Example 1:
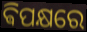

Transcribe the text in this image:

ଵିପକ୍ଷରେ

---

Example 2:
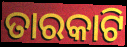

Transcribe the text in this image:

ତାରକାଟି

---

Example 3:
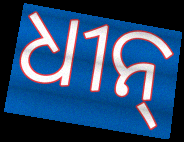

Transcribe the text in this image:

ଧୀନ୍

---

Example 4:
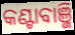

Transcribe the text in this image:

କଣ୍ଟାବାଞ୍ଜି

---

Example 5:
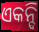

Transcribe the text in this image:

ଏକନ୍ଦି